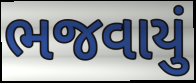
ભજવાયું